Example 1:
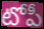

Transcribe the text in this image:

టోపీ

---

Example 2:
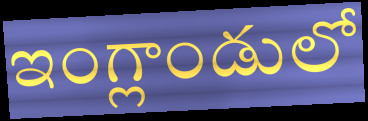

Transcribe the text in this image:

ఇంగ్లాండులో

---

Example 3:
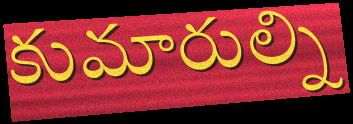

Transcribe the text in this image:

కుమారుల్ని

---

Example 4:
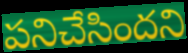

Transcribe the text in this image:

పనిచేసిందని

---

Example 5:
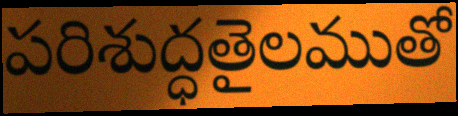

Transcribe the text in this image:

పరిశుద్ధతైలముతో